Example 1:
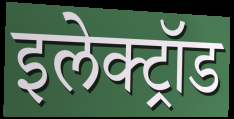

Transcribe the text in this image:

इलेक्ट्रॉड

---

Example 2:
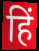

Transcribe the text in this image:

हिं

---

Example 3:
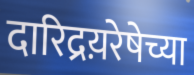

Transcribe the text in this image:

दारिद्रय़रेषेच्या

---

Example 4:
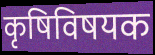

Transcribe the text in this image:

कृषिविषयक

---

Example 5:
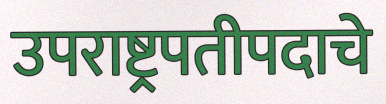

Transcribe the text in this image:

उपराष्ट्रपतीपदाचे